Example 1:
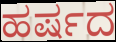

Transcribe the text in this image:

ಹರ್ಷದ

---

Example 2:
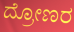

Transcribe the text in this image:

ದ್ರೋಣರ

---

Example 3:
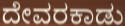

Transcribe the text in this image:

ದೇವರಕಾಡು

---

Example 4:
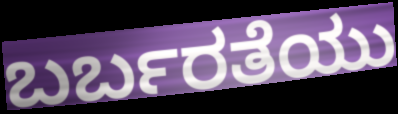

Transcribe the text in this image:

ಬರ್ಬರತೆಯು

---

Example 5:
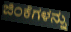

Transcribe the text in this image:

ಜಿಂಕೆಗಳನ್ನು